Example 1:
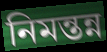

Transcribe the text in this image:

নিমন্তন্ন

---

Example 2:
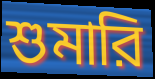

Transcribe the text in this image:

শুমারি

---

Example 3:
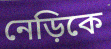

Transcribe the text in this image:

নেড়িকে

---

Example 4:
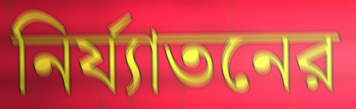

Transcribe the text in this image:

নির্য্যাতনের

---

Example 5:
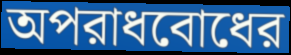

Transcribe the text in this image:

অপরাধবোধের